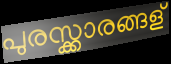
പുരസ്ക്കാരങ്ങള്